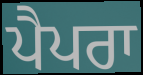
ਪੈਪਰਾ